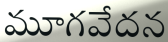
మూగవేదన